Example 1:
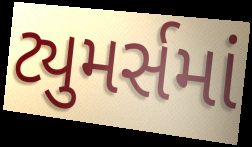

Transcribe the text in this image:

ટ્યુમર્સમાં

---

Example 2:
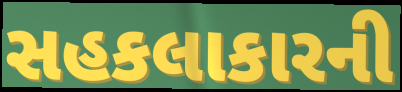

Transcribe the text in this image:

સહકલાકારની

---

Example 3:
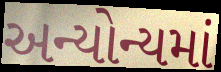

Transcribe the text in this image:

અન્યોન્યમાં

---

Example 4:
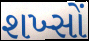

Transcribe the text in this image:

શખ્સોં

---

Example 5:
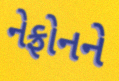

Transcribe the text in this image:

નેફ્રોનને